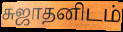
சுஜாதனிடம்